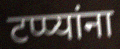
टप्प्यांना